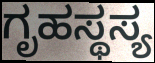
ಗೃಹಸ್ಥಸ್ಯ